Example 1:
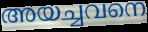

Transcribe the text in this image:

അയച്ചവനെ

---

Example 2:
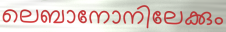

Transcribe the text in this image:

ലെബാനോനിലേക്കും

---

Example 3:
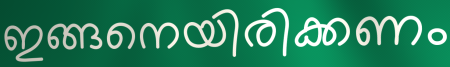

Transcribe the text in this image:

ഇങ്ങനെയിരിക്കണം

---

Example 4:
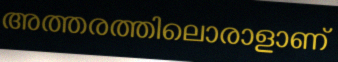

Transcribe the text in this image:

അത്തരത്തിലൊരാളാണ്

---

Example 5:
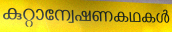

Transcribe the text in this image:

കുറ്റാന്വേഷണകഥകൾ